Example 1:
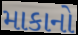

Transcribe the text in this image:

માકાનો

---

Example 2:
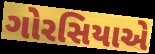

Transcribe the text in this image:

ગોરસિયાએ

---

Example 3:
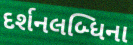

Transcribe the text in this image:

દર્શનલબ્ધિના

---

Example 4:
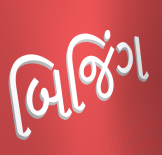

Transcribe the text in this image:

બિજિંગ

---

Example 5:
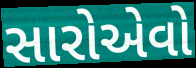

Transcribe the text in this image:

સારોએવો